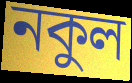
নকুল